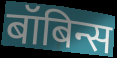
बॉबिन्स